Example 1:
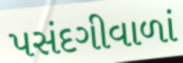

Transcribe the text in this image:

પસંદગીવાળાં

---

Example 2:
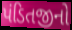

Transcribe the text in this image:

પંડિતજીનો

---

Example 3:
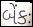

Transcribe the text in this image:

બેંકઃ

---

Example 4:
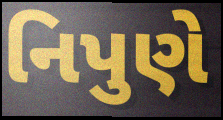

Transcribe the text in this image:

નિપુણે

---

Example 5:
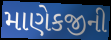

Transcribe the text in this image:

માણેકજીની